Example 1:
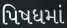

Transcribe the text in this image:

પિષધમાં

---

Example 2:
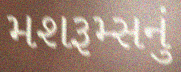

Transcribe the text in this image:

મશરૂમ્સનું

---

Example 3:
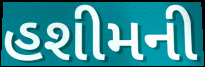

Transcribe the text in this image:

હશીમની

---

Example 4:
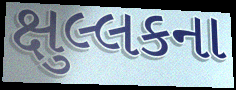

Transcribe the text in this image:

ક્ષુલ્લકના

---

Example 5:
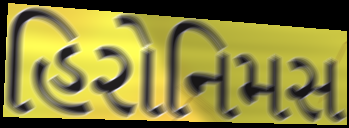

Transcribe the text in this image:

હિરોનિમસ